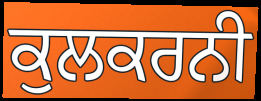
ਕੁਲਕਰਨੀ